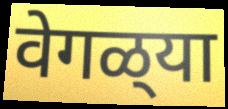
वेगळ्‌या